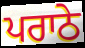
ਪਰਾਠੇ